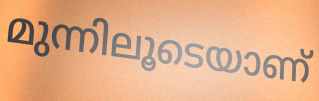
മുന്നിലൂടെയാണ്